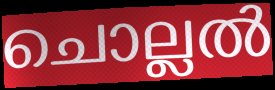
ചൊല്ലൽ